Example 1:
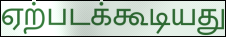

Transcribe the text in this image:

ஏற்படக்கூடியது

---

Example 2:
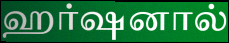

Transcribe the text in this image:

ஹர்ஷனால்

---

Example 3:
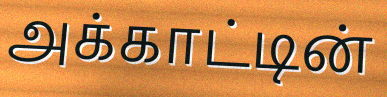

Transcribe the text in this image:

அக்காட்டின்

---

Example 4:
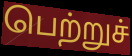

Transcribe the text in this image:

பெற்றுச்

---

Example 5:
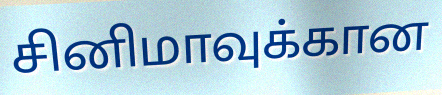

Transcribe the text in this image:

சினிமாவுக்கான